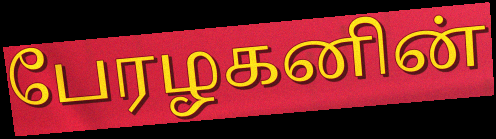
பேரழகனின்